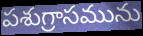
పశుగ్రాసమును